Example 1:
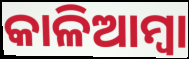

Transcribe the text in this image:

କାଳିଆମ୍ବା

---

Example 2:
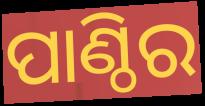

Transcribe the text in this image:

ପାଣ୍ଠିର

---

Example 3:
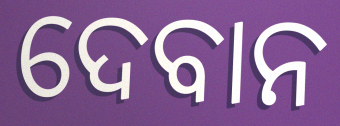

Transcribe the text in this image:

ଦେବାନ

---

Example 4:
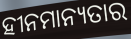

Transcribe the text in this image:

ହୀନମାନ୍ୟତାର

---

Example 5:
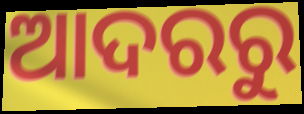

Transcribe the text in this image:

ଆଦରରୁ